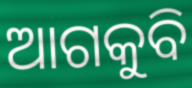
ଆଗକୁବି